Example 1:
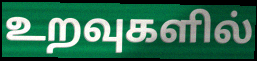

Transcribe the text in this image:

உறவுகளில்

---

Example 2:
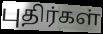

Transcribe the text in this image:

புதிர்கள்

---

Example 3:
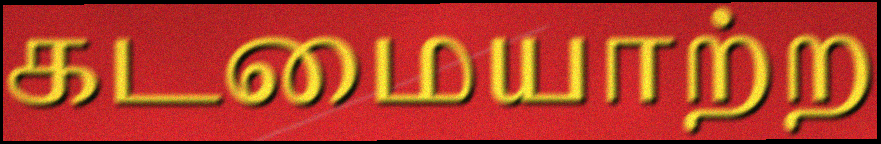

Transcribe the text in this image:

கடமையாற்ற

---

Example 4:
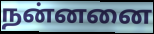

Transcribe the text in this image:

நன்னனை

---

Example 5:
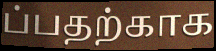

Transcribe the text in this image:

ப்பதற்காக